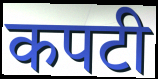
कपटी